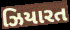
ઝિયારત